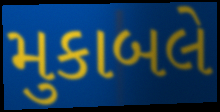
મુકાબલે